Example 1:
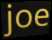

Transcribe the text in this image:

joe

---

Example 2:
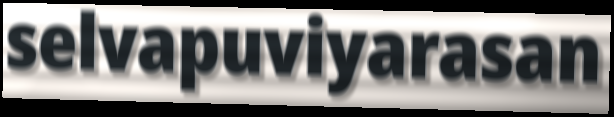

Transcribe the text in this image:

selvapuviyarasan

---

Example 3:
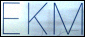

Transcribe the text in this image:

EKM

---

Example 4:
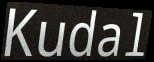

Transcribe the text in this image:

Kudal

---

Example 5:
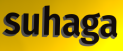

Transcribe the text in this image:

suhaga